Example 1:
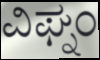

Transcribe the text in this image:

ವಿಘ್ನಂ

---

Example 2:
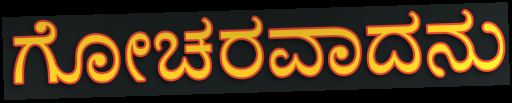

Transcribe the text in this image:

ಗೋಚರವಾದನು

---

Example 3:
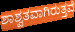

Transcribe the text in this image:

ಶಾಶ್ವತವಾಗಿರುತ್ತವೆ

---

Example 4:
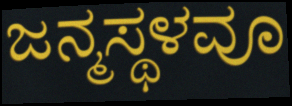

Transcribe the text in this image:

ಜನ್ಮಸ್ಥಳವೂ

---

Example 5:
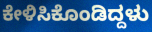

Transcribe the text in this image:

ಕೇಳಿಸಿಕೊಂಡಿದ್ದಳು